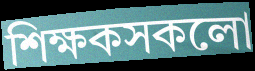
শিক্ষকসকলো